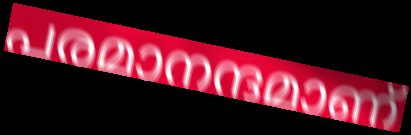
പരമാനന്ദമാണ്